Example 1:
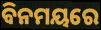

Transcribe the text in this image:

ବିନମୟରେ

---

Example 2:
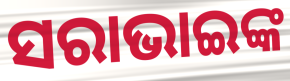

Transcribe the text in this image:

ସରାଭାଇଙ୍କ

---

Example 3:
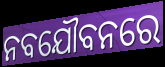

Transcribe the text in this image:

ନବଯୌବନରେ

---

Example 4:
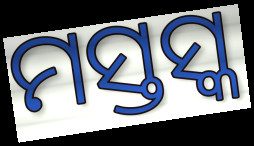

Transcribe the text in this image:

ମସ୍ତସ୍କ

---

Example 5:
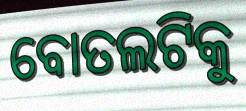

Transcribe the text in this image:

ବୋତଲଟିକୁ